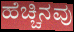
ಹೆಚ್ಚಿನವು